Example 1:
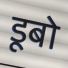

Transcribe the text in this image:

डूबो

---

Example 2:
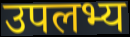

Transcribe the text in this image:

उपलभ्य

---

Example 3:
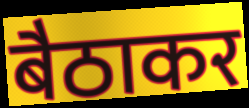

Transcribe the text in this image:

बैठाकर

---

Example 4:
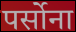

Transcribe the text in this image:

पर्सोना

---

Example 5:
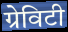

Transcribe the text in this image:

ग्रेविटी